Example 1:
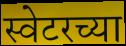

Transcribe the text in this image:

स्वेटरच्या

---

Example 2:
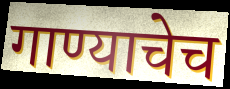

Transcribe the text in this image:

गाण्याचेच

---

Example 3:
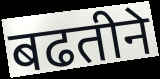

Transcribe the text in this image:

बढतीने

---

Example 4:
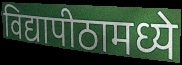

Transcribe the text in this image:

विद्यापीठामध्ये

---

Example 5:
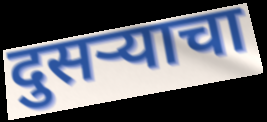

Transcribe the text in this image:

दुसऱ्याचा